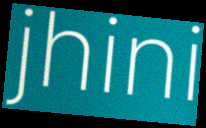
jhini